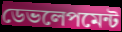
ডেভলেপমেন্ট